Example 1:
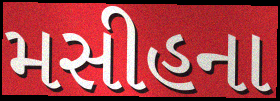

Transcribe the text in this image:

મસીહના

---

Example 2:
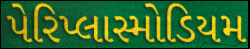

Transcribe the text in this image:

પેરિપ્લાસ્મોડિયમ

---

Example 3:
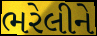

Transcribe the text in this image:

ભરેલીને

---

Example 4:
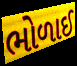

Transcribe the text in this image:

ભોળાઈ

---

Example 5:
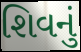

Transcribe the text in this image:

શિવનું